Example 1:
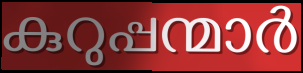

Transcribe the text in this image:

കുറുപ്പന്മാർ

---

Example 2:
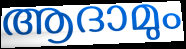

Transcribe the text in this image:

ആദാമും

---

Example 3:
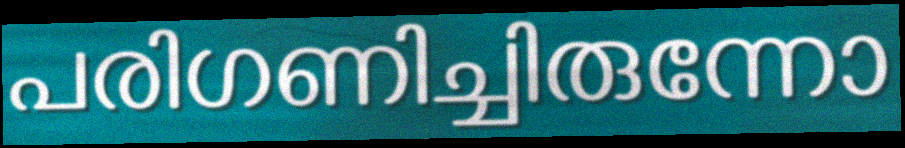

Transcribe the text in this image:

പരിഗണിച്ചിരുന്നോ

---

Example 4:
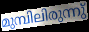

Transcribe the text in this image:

മുമ്പിലിരുന്നു്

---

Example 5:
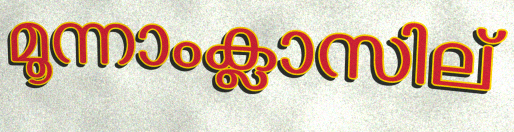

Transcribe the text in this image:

മൂന്നാംക്ലാസില്